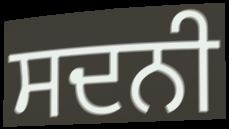
ਸਦਨੀ